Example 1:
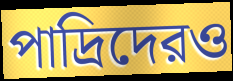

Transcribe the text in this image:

পাদ্রিদেরও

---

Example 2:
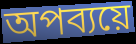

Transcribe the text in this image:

অপব্যয়ে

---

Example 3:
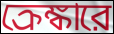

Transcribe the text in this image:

ক্রেঙ্কারে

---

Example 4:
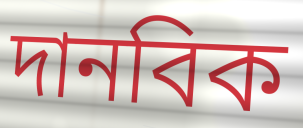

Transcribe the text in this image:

দানবিক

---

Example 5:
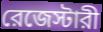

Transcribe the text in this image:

রেজেস্টারী